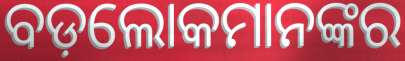
ବଡ଼ଲୋକମାନଙ୍କର